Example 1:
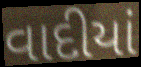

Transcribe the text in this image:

વાદીયાં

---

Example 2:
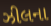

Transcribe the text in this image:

ઝીલના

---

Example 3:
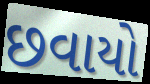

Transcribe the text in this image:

છવાયો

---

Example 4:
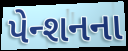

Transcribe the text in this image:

પેન્શનના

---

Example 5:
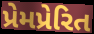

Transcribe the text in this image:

પ્રેમપ્રેરિત